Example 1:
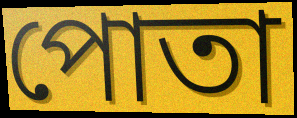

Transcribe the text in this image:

পোতা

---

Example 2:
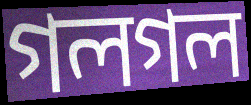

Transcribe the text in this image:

গলগল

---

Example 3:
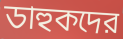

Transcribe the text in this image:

ডাহুকদের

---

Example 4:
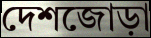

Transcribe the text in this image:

দেশজোড়া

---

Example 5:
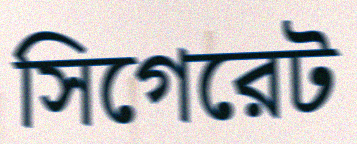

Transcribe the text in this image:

সিগেরেট